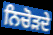
ਨਿਚੋੜਦੇ